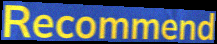
Recommend